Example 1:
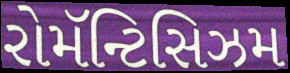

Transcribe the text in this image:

રોમૅન્ટિસિઝમ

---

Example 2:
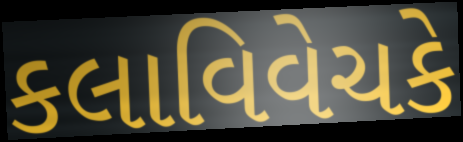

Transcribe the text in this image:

કલાવિવેચકે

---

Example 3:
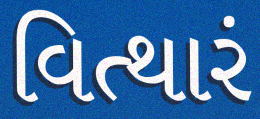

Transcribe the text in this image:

વિત્થારં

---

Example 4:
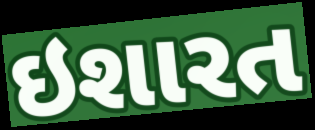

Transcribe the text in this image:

ઇશારત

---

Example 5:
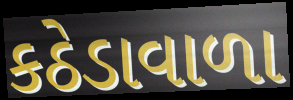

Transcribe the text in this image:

કઠેડાવાળા